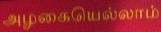
அழகையெல்லாம்